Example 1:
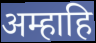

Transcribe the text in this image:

अम्हाहि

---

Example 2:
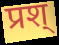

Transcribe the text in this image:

प्रश्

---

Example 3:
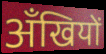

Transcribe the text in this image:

अँखियों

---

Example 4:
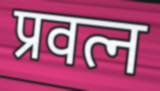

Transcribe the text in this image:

प्रवत्न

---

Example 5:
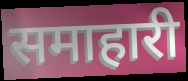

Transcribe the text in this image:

समाहारी